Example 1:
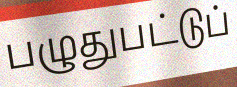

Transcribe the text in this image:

பழுதுபட்டுப்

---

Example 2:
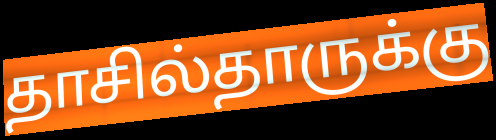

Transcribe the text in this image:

தாசில்தாருக்கு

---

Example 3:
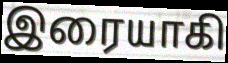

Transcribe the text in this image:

இரையாகி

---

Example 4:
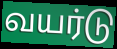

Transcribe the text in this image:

வயர்டு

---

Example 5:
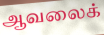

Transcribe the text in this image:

ஆவலைக்